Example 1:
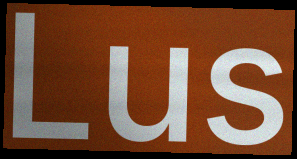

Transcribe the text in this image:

Lus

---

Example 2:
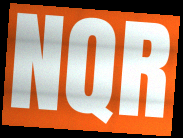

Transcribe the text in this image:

NQR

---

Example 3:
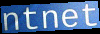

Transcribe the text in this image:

ntnet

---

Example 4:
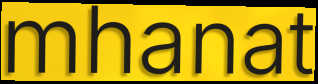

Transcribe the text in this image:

mhanat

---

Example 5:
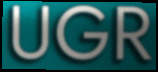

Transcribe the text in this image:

UGR